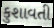
કુશાવતી